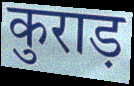
कुराड़